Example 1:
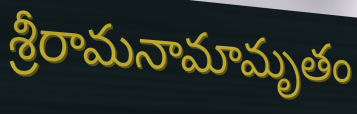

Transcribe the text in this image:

శ్రీరామనామామృతం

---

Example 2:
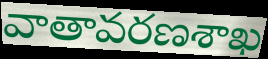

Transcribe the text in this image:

వాతావరణశాఖ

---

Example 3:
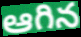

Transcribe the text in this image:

ఆగిన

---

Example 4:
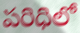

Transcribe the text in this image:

పరిధిలో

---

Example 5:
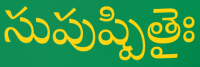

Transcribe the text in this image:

సుపుష్పితైః